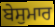
ਬੇਸੁਮਾਰ